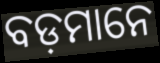
ବଡ଼ମାନେ